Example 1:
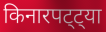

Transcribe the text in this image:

किनारपट्ट्या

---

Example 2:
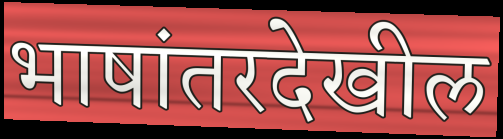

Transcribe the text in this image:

भाषांतरदेखील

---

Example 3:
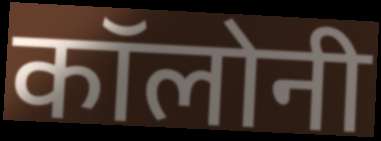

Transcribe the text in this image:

कॉलोनी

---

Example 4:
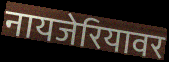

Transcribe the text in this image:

नायजेरियावर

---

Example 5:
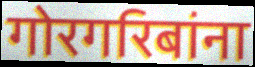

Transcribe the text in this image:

गोरगरिबांना